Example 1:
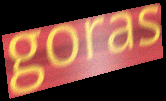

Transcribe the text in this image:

goras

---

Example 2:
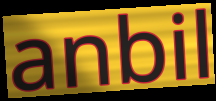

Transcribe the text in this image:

anbil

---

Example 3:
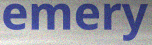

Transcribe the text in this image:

emery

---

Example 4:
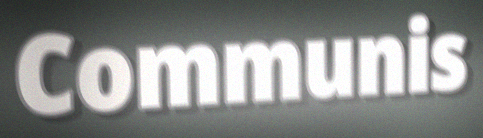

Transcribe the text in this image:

Communis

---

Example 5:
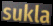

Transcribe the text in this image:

sukla